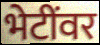
भेटींवर